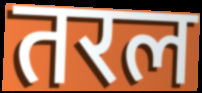
तरल